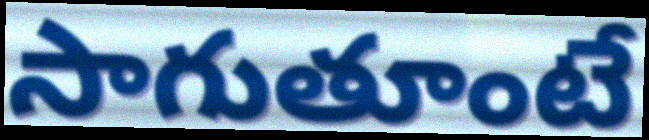
సాగుతూంటే